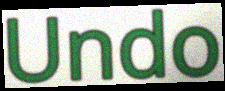
Undo